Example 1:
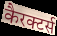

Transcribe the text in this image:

कैरक्टर्स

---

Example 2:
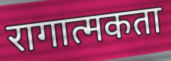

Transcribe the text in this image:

रागात्मकता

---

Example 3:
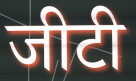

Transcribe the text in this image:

जीटी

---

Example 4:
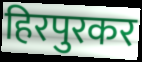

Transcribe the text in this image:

हिरपुरकर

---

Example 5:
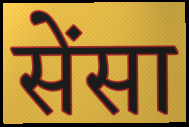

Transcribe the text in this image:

सेंसा